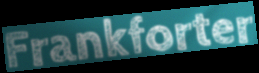
Frankforter